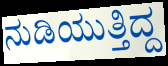
ನುಡಿಯುತ್ತಿದ್ದ